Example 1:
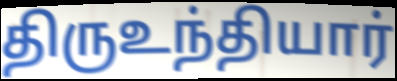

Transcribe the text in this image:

திருஉந்தியார்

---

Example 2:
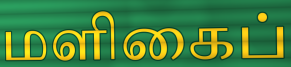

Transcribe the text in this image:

மளிகைப்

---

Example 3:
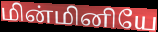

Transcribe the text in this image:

மின்மினியே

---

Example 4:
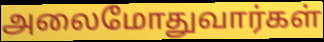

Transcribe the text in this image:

அலைமோதுவார்கள்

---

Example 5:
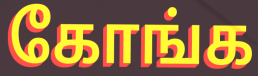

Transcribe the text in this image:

கோங்க